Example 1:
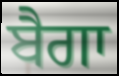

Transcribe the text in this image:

ਬੈਗਾ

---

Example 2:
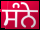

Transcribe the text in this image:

ਸੰਨੇ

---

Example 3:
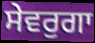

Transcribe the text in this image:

ਸੇਵਰੁਗਾ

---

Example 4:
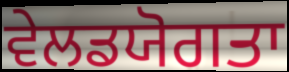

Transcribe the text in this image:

ਵੇਲਡਯੋਗਤਾ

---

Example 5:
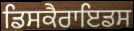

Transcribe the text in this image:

ਡਿਸਕੈਰਾਇਡਸ